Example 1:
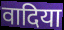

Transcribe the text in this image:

वादिया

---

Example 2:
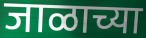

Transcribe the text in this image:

जाळाच्या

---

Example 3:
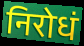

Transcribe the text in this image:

निरोधं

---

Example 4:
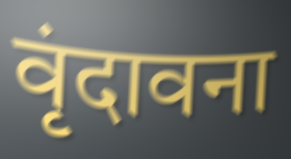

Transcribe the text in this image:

वृंदावना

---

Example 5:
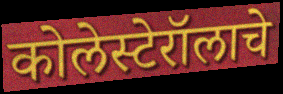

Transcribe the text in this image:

कोलेस्टेरॉलाचे